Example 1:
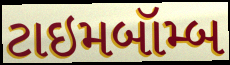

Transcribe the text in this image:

ટાઇમબૉમ્બ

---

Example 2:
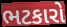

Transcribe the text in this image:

ભટકારો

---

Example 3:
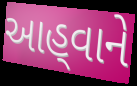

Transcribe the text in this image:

આહ્‌વાને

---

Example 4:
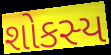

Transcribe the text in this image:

શોકસ્ય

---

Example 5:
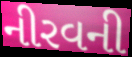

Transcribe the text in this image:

નીરવની